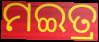
ମଇତ୍ର